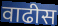
वाढीस